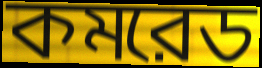
কমরেড